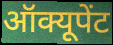
ऑक्यूपेंट